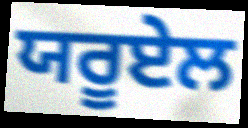
ਯਰੂਏਲ